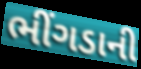
ભીંગડાની